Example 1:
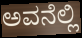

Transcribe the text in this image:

ಅವನೆಲ್ಲಿ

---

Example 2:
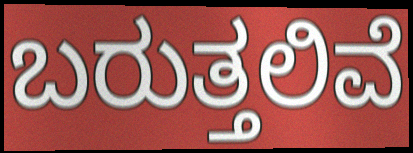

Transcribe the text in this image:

ಬರುತ್ತಲಿವೆ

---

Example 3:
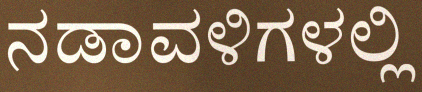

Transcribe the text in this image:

ನಡಾವಳಿಗಳಲ್ಲಿ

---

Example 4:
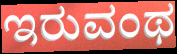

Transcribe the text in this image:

ಇರುವಂಥ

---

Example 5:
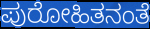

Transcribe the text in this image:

ಪುರೋಹಿತನಂತೆ